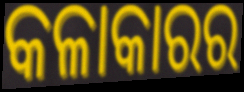
କଳାକାରର